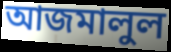
আজমালুল